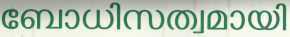
ബോധിസത്വമായി